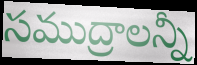
సముద్రాలన్నీ